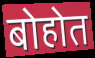
बोहोत